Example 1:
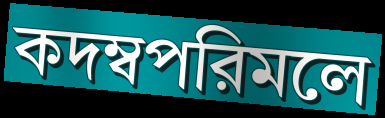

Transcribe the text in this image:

কদম্বপরিমলে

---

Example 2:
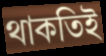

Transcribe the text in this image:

থাকতিই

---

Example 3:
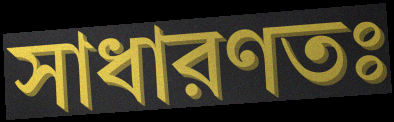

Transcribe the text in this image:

সাধারণতঃ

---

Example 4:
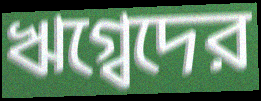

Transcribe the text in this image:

ঋগ্বেদের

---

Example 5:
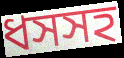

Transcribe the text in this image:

ধসসহ